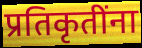
प्रतिकृतींना